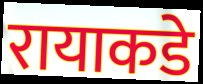
रायाकडे